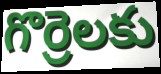
గొర్రెలకు